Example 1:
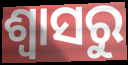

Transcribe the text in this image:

ଶ୍ୱାସରୁ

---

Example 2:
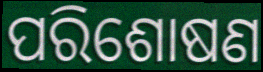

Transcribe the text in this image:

ପରିଶୋଷଣ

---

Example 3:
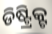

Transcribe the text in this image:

ଡିଷ୍ଟ୍ରିକ୍ଟ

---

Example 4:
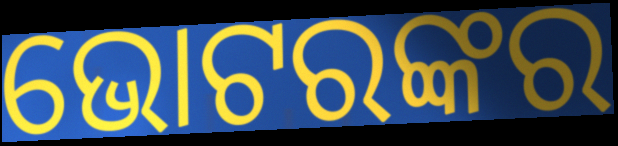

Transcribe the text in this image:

ଭୋଟରଙ୍କର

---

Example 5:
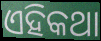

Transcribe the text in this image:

ଏହିକଥା